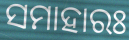
ସମାହାରଃ